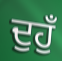
ਦੁਹੁਁ